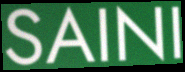
SAINI